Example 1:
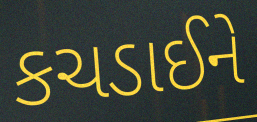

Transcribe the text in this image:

કચડાઈને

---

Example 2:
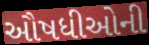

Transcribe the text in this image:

ઔષધીઓની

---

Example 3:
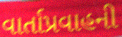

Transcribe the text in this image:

વાર્તાપ્રવાહની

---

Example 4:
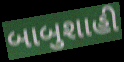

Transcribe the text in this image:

બાબુશાહી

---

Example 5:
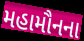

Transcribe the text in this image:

મહામૌનના